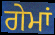
ਗੇਮਾਂ